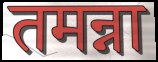
तमन्ना